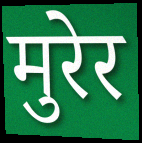
मुरेर